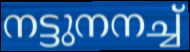
നട്ടുനനച്ച്